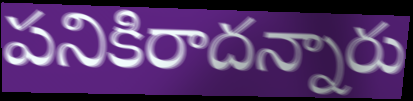
పనికిరాదన్నారు